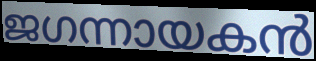
ജഗന്നായകൻ